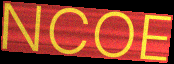
NCOE